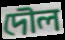
দৌল